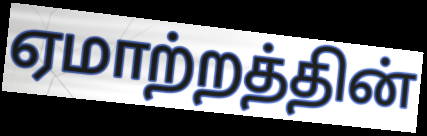
ஏமாற்றத்தின்